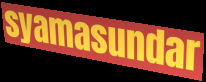
syamasundar